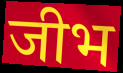
जीभ